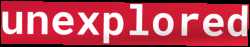
unexplored